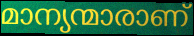
മാന്യന്മാരാണ്